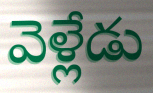
వెళ్లేడు